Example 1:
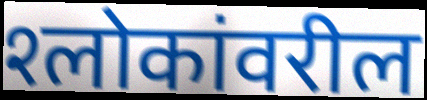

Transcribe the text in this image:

श्लोकांवरील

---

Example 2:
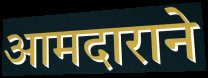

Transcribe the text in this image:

आमदाराने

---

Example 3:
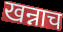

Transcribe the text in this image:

खन्नाच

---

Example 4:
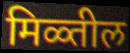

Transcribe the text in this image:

मिळ्तील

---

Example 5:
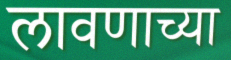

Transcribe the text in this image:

लावणाच्या